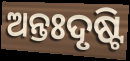
ଅନ୍ତଃଦୃଷ୍ଟି